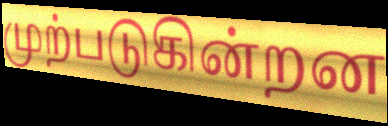
முற்படுகின்றன